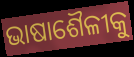
ଭାଷାଶୈଳୀକୁ